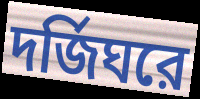
দর্জিঘরে